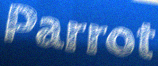
Parrot